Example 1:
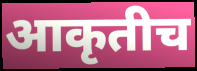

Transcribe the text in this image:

आकृतीच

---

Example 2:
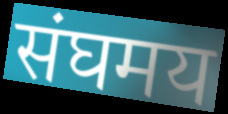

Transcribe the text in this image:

संघमय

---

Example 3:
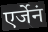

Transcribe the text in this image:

एर्जेनं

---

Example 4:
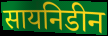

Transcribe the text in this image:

सायनिडीन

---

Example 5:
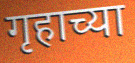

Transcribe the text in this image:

गृहाच्या